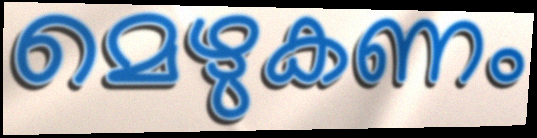
മെഴുകണം